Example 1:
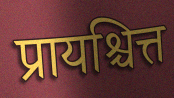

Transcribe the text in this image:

प्रायश्चित्त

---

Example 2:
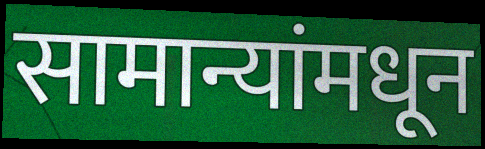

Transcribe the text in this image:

सामान्यांमधून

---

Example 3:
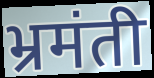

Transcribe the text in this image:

भ्रमंती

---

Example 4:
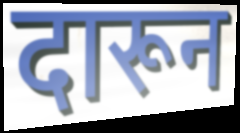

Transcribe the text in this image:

दारून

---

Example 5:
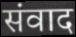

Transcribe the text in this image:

संवाद